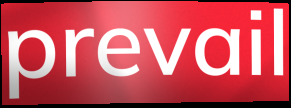
prevail